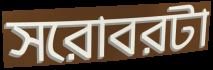
সরোবরটা